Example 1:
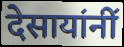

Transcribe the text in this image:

देसायांनीं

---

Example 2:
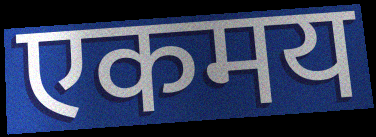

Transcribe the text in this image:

एकमय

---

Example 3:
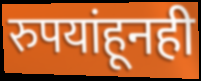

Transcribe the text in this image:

रुपयांहूनही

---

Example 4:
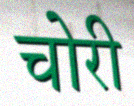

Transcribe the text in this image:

चोरी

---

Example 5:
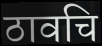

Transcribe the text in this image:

ठावचि